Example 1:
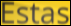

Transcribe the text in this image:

Estas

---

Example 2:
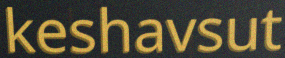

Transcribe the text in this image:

keshavsut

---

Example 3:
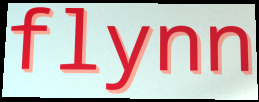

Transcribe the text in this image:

flynn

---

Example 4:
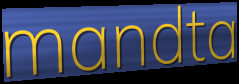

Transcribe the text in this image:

mandta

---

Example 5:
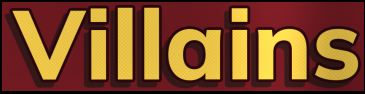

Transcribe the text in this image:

Villains